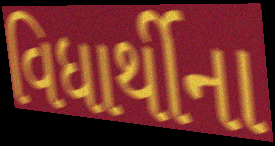
વિધાર્થીના